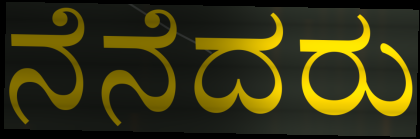
ನೆನೆದರು